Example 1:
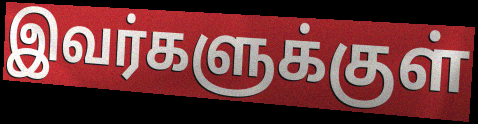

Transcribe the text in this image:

இவர்களுக்குள்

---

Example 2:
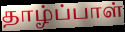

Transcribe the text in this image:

தாழ்ப்பாள்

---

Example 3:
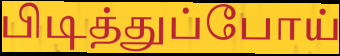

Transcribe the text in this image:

பிடித்துப்போய்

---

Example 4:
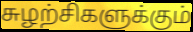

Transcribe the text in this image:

சுழற்சிகளுக்கும்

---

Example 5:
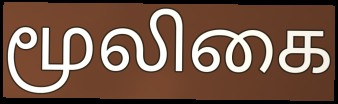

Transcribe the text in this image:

மூலிகை